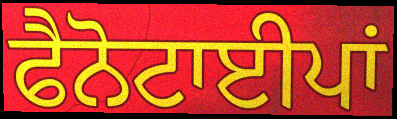
ਫੈਨੋਟਾਈਪਾਂ